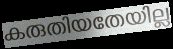
കരുതിയതേയില്ല